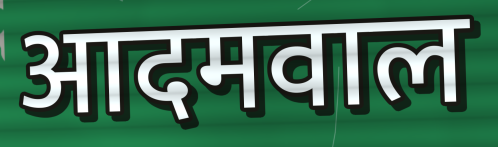
आदमवाल